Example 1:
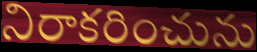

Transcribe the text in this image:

నిరాకరించును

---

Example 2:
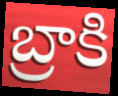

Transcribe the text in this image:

బ్రాకి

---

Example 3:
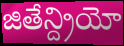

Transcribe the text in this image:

జితేన్ద్రియో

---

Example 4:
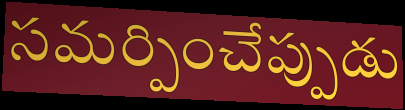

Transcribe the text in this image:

సమర్పించేప్పుడు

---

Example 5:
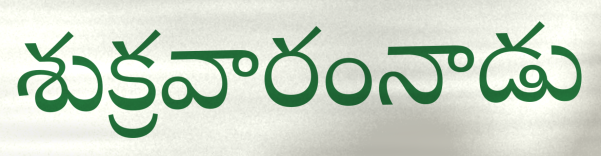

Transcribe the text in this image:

శుక్రవారంనాడు